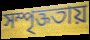
সম্পৃক্ততায়